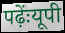
पढ़ेंःयूपी